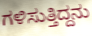
ಗಳಿಸುತ್ತಿದ್ದನು